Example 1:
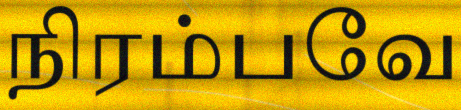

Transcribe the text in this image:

நிரம்பவே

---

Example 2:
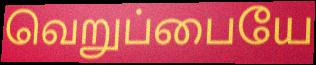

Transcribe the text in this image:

வெறுப்பையே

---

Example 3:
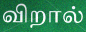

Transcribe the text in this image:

விறால்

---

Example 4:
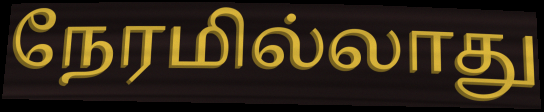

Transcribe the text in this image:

நேரமில்லாது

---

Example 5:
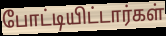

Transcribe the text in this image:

போட்டியிட்டார்கள்